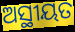
ଅସ୍ଥୀୟତ